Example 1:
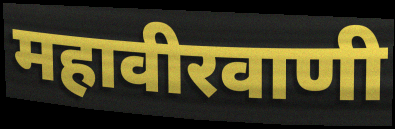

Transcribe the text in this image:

महावीरवाणी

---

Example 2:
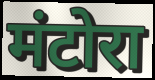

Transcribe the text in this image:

मंटोरा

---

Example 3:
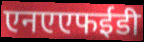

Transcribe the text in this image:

एनएएफईडी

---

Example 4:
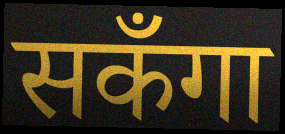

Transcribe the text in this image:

सकँगा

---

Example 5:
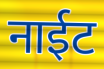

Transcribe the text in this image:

नाईट